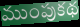
ముంపుకథ